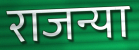
राजन्या